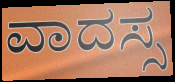
ವಾದಸ್ಸ